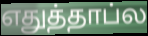
எதுத்தாப்ல